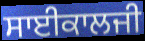
ਸਾਈਕਾਲਜੀ